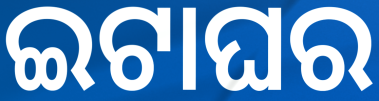
ଇଟାଘର